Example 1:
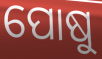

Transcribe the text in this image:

ପୋଷୁ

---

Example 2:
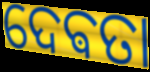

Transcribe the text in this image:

ଦେଵତା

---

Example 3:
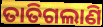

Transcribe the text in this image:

ତାତିଗଲାଣି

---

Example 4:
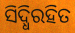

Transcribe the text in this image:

ସିଦ୍ଧିରହିତ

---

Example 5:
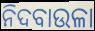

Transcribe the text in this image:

ନିଦବାଉଳା